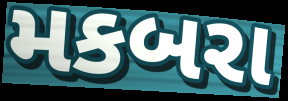
મકબરા